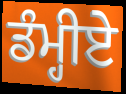
ਡੰਮ੍ਹੀਏ